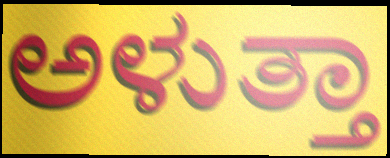
ಅಳುತ್ತಾ